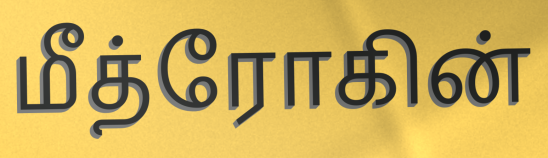
மீத்ரோகின்